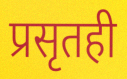
प्रसृतही